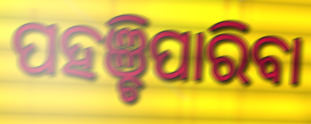
ପହଞ୍ଚିପାରିବା